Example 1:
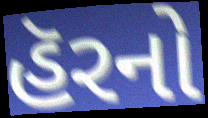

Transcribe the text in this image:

હૅરનો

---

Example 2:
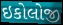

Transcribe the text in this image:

ઇકોલોજી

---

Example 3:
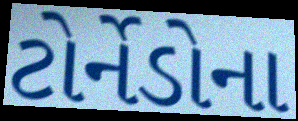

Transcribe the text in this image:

ટોર્નેડોના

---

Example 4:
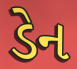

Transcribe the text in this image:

ડેન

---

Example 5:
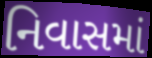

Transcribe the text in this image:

નિવાસમાં